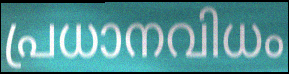
പ്രധാനവിധം